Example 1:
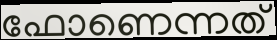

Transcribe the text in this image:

ഫോണെന്നത്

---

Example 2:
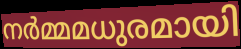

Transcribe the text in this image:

നർമ്മമധുരമായി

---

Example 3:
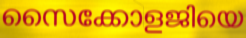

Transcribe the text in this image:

സൈക്കോളജിയെ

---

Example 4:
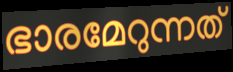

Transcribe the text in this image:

ഭാരമേറുന്നത്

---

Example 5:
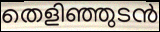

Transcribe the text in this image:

തെളിഞ്ഞുടൻ